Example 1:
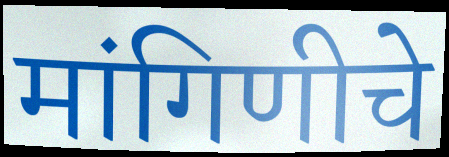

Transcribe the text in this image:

मांगिणीचे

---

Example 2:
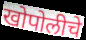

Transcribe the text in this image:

खोपोलीचे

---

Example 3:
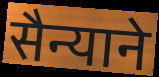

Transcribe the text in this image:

सैन्याने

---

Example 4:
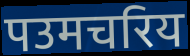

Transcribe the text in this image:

पउमचरिय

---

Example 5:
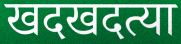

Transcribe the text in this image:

खदखदत्या